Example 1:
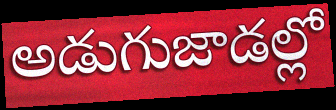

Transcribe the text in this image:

అడుగుజాడల్లో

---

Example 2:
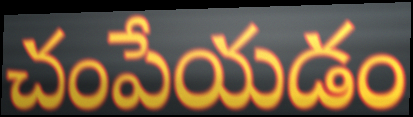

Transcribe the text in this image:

చంపేయడం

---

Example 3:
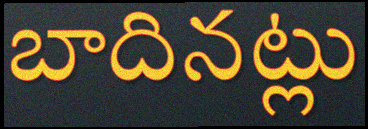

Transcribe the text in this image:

బాదినట్లు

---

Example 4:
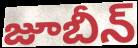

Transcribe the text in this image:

జూబీన్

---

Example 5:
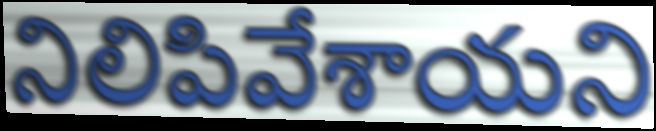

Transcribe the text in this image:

నిలిపివేశాయని